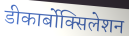
डीकार्बोक्सिलेशन